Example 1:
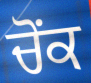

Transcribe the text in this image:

ਚੋਂਕ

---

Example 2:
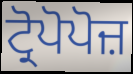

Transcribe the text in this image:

ਟ੍ਰੋਪੋਪੋਜ਼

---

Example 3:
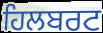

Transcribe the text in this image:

ਹਿਲਬਰਟ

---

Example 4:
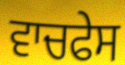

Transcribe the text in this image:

ਵਾਚਫੇਸ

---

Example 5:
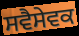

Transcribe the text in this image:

ਸਵੈਸੇਵਕ